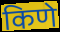
किणे